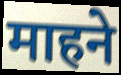
माहने